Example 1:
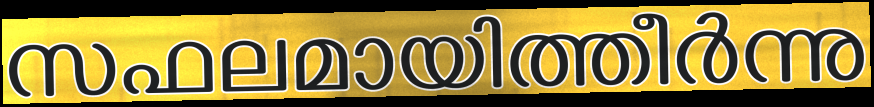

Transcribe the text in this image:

സഫലമായിത്തീർന്നു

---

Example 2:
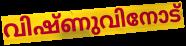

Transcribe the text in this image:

വിഷ്ണുവിനോട്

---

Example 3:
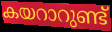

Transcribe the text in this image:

കയറാറുണ്ട്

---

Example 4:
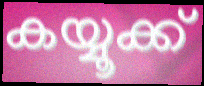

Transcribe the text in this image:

കയ്യൂക്ക്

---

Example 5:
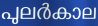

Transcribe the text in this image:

പുലർകാല